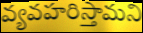
వ్యవహరిస్తామని